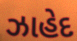
ઝાહેદ